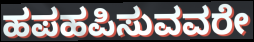
ಹಪಹಪಿಸುವವರೇ